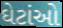
ઘેટાંઓ